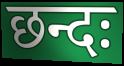
छन्दः